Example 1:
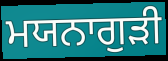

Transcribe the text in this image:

ਮਯਨਾਗੁੜੀ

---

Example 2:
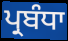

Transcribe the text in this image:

ਪ੍ਰਬੰਧਾ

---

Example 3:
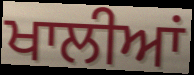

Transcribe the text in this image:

ਖਾਲੀਆਂ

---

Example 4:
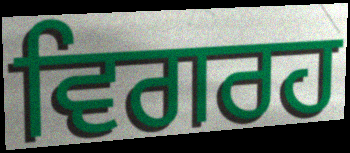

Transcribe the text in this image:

ਵਿਗਰਹ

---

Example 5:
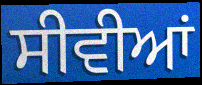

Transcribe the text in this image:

ਸੀਵੀਆਂ